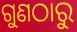
ଗୁଣଠାରୁ